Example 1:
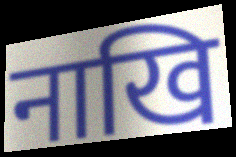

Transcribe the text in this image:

नाखि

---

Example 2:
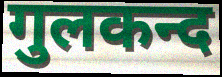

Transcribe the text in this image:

गुलकन्द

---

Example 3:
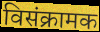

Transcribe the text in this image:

विसंक्रामक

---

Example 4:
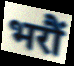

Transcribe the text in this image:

भरौं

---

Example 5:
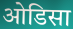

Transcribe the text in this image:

ओडिसा